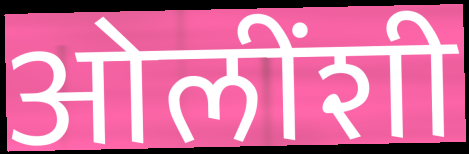
ओलींशी